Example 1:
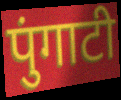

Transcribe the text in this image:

पुंगाटी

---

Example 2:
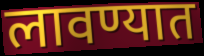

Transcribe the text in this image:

लावण्यात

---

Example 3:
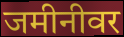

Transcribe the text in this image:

जमीनीवर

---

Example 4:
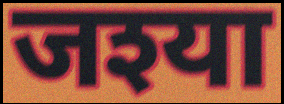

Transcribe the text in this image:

जश्या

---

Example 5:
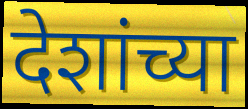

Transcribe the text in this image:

देशांच्या